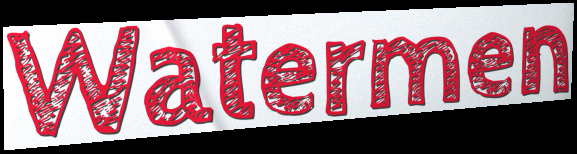
Watermen